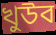
খুউব